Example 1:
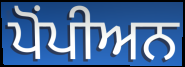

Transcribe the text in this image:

ਪੋਂਪੀਅਨ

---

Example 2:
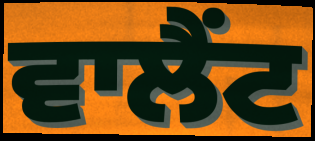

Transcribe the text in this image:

ਵਾਲੈਂਟ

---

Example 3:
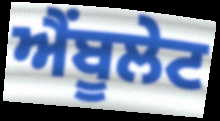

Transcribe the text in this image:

ਐਂਬੂਲੇਟ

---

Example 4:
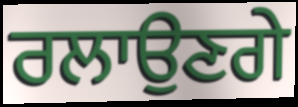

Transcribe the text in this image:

ਰਲਾਉਣਗੇ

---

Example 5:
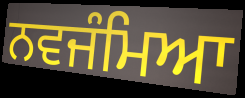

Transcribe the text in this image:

ਨਵਜੰਮਿਆ